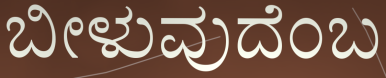
ಬೀಳುವುದೆಂಬ